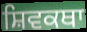
ਸ਼ਿਵਕਥਾ